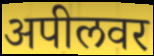
अपीलवर